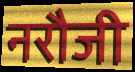
नरौजी